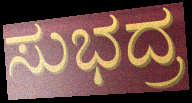
ಸುಭದ್ರ